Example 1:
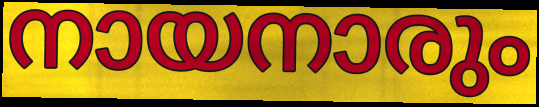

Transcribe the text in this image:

നായനാരും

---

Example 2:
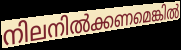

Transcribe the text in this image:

നിലനിൽക്കണമെങ്കിൽ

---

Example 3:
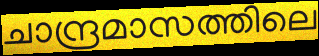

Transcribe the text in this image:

ചാന്ദ്രമാസത്തിലെ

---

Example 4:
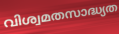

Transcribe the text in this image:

വിശ്വമതസാദ്ധ്യത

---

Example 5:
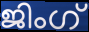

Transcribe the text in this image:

ജിംഗ്